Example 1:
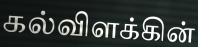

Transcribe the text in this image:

கல்விளக்கின்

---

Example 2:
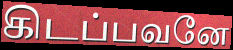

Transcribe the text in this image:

கிடப்பவனே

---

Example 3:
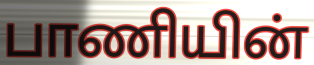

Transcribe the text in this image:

பாணியின்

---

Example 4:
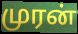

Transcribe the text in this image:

முரன்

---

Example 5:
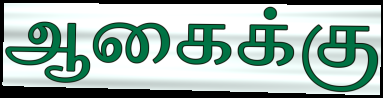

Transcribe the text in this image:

ஆகைக்கு